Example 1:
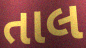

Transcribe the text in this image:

તાલ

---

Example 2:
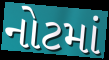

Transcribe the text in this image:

નોટમાં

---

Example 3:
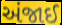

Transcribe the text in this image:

અંજાઈ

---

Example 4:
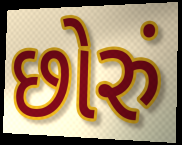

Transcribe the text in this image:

છોરું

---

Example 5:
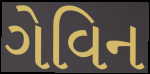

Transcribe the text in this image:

ગેવિન